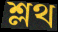
শ্লথ